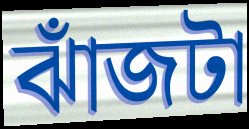
ঝাঁজটা